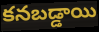
కనబడ్డాయి